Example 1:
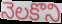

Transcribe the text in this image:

నెలకొని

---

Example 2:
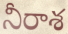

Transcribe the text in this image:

నీరాశ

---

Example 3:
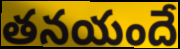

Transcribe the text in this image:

తనయందే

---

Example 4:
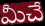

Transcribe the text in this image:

మీచే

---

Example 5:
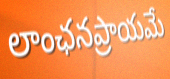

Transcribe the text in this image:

లాంఛనప్రాయమే